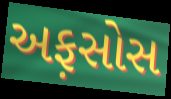
અફ઼સોસ